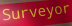
Surveyor